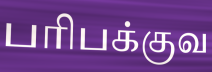
பரிபக்குவ